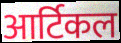
आर्टिकल